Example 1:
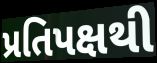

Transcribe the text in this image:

પ્રતિપક્ષથી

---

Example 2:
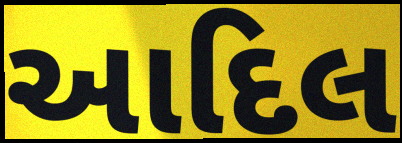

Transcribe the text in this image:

આદિલ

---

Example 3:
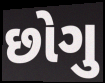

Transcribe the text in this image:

છોગુ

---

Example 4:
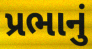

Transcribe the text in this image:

પ્રભાનું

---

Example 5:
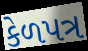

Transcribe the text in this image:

કેળપત્ર